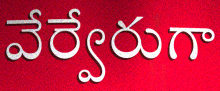
వేర్వేరుగా